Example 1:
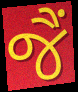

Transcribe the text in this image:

જૈં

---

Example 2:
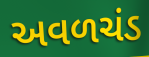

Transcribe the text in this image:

અવળચંડ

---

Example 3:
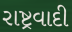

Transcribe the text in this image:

રાષ્ટ્રવાદી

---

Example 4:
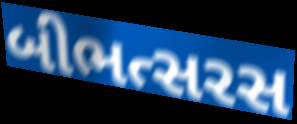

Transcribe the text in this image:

બીભત્સરસ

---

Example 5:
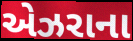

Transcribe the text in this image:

એઝરાના